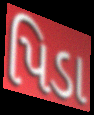
પિડા